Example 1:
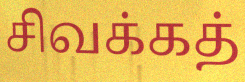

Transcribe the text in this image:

சிவக்கத்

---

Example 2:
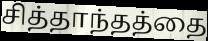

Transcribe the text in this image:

சித்தாந்தத்தை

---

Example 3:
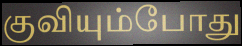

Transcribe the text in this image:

குவியும்போது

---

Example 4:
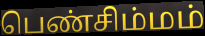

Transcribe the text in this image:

பெண்சிம்மம்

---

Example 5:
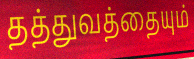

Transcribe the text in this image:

தத்துவத்தையும்